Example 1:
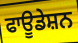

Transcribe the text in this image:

ਫਾਊਡੇਸ਼ਨ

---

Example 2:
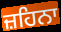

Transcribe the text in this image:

ਜ਼ਹਿਨਾ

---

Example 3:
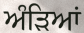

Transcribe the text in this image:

ਅੰੜਿਆਂ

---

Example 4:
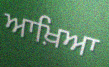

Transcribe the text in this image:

ਆਖ਼ਿਆ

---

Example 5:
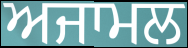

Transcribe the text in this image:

ਅਜਾਮਲ